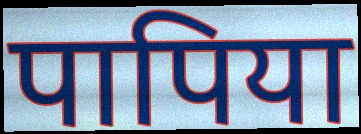
पापिया